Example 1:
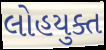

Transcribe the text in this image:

લોહયુક્ત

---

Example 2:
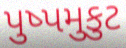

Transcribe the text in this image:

પુષ્પમુકુટ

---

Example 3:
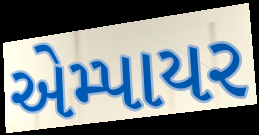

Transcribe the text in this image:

એમ્પાયર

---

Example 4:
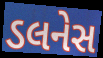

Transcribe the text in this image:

ડલનેસ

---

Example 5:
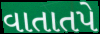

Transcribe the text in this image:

વાતાતપે